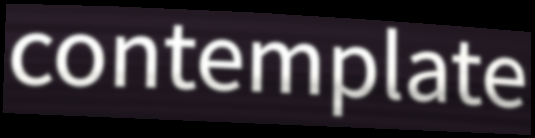
contemplate